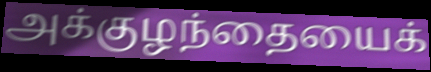
அக்குழந்தையைக்